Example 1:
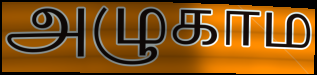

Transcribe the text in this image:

அழுகாம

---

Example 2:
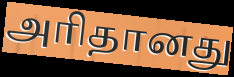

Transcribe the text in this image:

அரிதானது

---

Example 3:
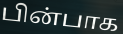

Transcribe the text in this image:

பின்பாக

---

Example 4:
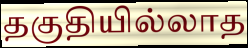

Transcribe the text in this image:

தகுதியில்லாத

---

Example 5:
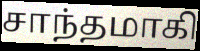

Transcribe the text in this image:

சாந்தமாகி